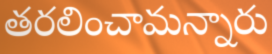
తరలించామన్నారు